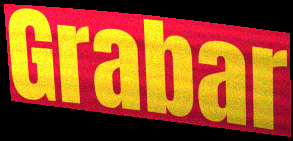
Grabar